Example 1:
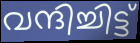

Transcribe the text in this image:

വന്ദിച്ചിട്ട്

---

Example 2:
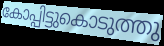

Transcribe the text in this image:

കോപ്പിട്ടുകൊടുത്തു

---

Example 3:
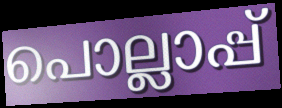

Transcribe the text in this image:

പൊല്ലാപ്പ്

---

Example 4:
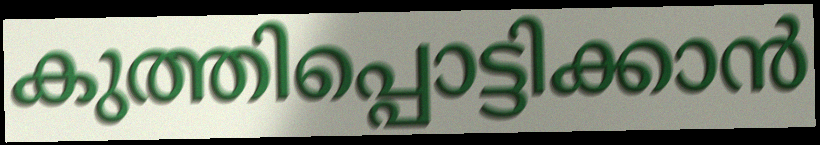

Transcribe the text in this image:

കുത്തിപ്പൊട്ടിക്കാൻ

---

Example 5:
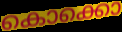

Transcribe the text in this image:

കൊക്കൊ